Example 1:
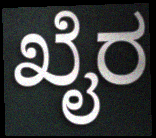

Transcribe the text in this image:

ಖೈರ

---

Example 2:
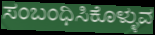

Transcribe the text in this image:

ಸಂಬಂಧಿಸಿಕೊಳ್ಳುವ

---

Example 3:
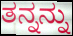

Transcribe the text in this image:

ತನ್ನನ್ನು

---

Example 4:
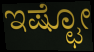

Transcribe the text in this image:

ಇಷ್ಟೋ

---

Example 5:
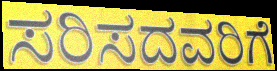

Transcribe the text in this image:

ಸರಿಸದವರಿಗೆ